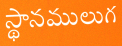
స్థానములుగ